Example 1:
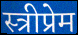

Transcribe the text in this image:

स्त्रीप्रेम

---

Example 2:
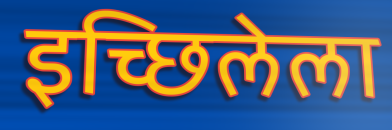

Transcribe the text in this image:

इच्छिलेला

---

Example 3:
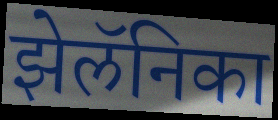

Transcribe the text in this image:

झेलॅनिका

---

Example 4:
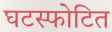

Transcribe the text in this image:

घटस्फोटित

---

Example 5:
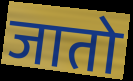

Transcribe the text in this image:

जातो